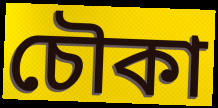
চৌকা